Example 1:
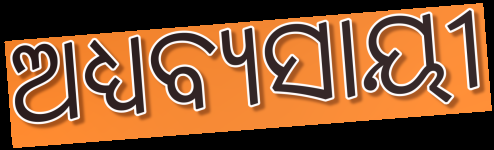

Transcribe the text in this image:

ଅଧ୍ୟବ୍ୟସାୟୀ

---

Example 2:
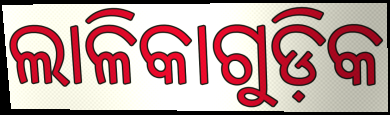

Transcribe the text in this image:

ଲାଳିକାଗୁଡ଼ିକ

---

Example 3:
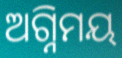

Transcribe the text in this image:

ଅଗ୍ନିମୟ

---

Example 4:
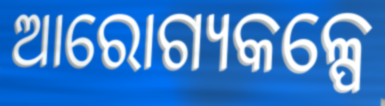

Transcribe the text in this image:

ଆରୋଗ୍ୟକଳ୍ପେ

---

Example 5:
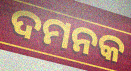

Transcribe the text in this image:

ଦମନକ